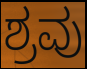
ಶ್ರವು